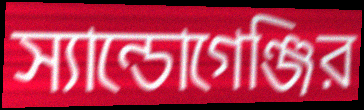
স্যান্ডোগেঞ্জির